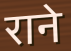
राने